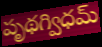
పృథగ్విధమ్